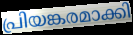
പ്രിയങ്കരമാക്കി